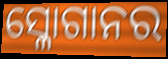
ସ୍ଳୋଗାନର